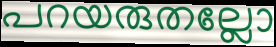
പറയരുതല്ലോ